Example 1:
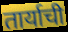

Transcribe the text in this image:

तार्याची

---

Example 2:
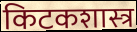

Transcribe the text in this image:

किटकशास्‍त्र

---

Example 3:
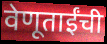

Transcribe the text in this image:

वेणूताईंची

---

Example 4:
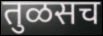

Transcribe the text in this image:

तुळसच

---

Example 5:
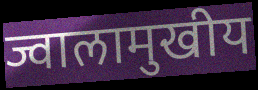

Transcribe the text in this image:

ज्वालामुखीय